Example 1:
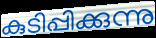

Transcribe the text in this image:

കുടിപ്പിക്കുന്നു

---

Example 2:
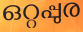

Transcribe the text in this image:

ഒറ്റപ്പുര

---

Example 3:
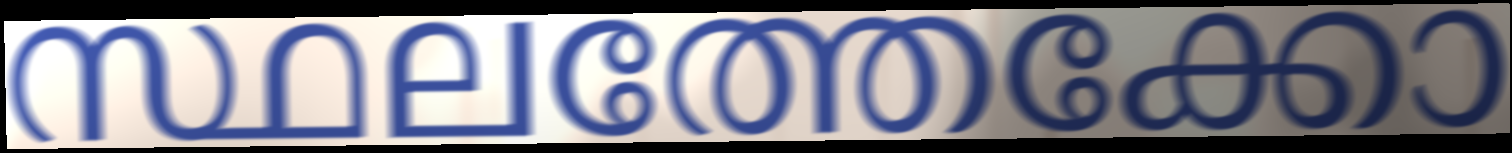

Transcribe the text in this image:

സ്ഥലത്തേക്കോ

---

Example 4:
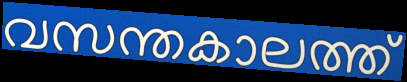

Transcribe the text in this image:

വസന്തകാലത്ത്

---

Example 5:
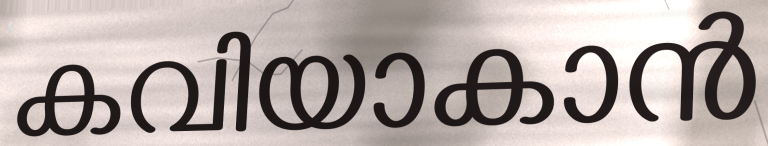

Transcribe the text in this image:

കവിയാകാൻ